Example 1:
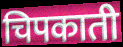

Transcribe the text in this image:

चिपकाती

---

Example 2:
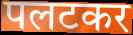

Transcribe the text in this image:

पलटकर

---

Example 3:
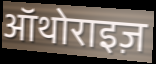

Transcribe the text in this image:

ऑथोराइज़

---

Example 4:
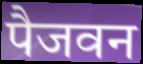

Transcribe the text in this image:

पैजवन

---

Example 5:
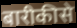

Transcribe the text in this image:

बारीकीसे